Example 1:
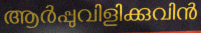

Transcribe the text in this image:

ആർപ്പുവിളിക്കുവിൻ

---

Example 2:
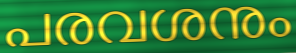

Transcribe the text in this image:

പരവശനും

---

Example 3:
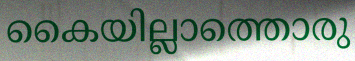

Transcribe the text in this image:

കൈയില്ലാത്തൊരു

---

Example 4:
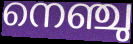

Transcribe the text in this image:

നെഞ്ചു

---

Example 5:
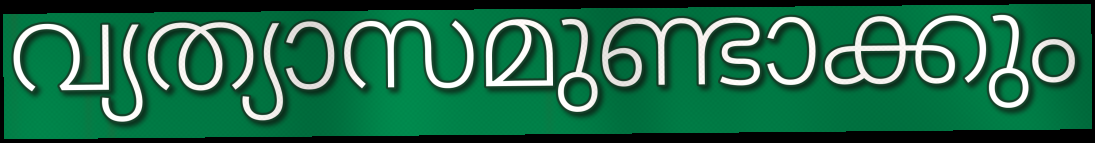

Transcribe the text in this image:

വ്യത്യാസമുണ്ടാക്കും